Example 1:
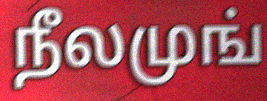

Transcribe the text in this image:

நீலமுங்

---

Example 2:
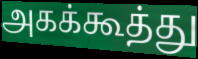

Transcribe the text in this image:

அகக்கூத்து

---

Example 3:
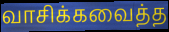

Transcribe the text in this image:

வாசிக்கவைத்த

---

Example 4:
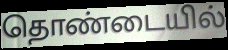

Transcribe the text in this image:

தொண்டையில்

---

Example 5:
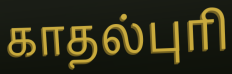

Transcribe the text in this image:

காதல்புரி